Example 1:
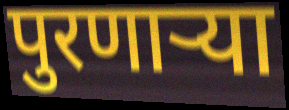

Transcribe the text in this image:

पुरणाऱ्या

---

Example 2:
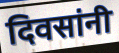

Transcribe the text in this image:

दिवसांनी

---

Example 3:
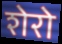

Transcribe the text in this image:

शेरो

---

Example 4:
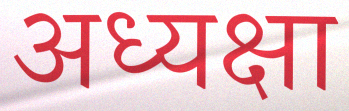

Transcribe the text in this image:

अध्यक्षा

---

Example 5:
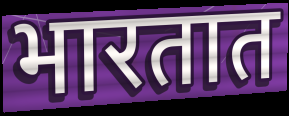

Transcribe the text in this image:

भारतात